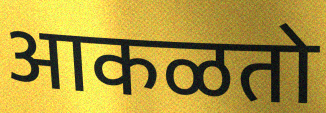
आकळतो